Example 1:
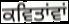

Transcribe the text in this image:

ਕਵਿਤਾਂਵਾਂ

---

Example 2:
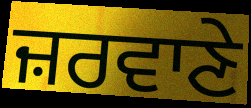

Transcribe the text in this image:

ਜ਼ਰਵਾਣੇ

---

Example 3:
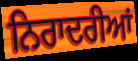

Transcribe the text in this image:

ਨਿਰਾਦਰੀਆਂ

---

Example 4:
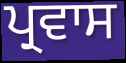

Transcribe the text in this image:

ਪ੍ਰਵਾਸ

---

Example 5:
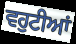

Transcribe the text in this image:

ਵਹੁਟੀਆਂ